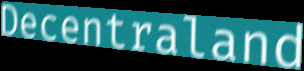
Decentraland